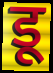
डू